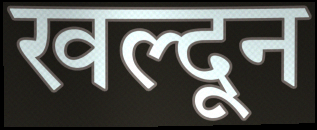
खल्दून